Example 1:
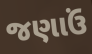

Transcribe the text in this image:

જણાઉં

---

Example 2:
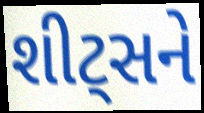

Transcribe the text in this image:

શીટ્સને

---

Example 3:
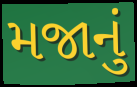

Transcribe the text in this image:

મજાનું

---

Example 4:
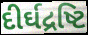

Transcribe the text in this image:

દીર્ઘદ્રષ્ટિ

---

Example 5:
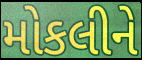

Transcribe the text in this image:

મોકલીને